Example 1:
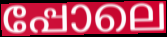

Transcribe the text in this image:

പ്പോലെ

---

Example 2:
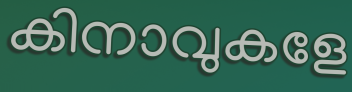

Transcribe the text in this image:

കിനാവുകളേ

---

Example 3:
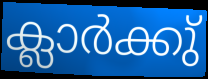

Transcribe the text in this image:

ക്ലാർക്കു്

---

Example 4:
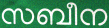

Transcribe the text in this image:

സബീന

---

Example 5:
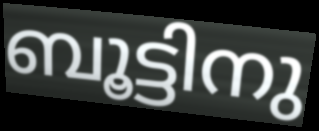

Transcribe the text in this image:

ബൂട്ടിനു